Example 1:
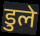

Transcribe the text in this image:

डुले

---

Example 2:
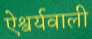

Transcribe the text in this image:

ऐश्वर्यवाली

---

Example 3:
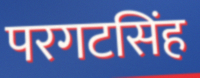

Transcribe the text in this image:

परगटसिंह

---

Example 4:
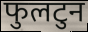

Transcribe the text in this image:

फुलटुन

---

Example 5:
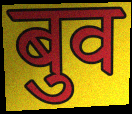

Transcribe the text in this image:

बुव